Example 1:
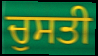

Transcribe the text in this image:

ਚੁਸਤੀ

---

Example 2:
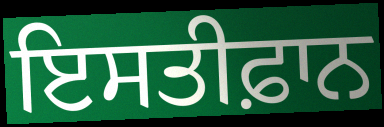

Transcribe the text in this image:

ਇਸਤੀਫ਼ਾਨ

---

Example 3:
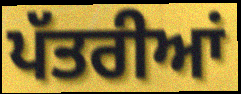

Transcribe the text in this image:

ਪੱਤਰੀਆਂ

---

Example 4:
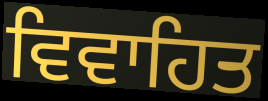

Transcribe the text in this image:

ਵਿਵਾਹਿਤ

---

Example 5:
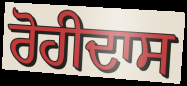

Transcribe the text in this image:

ਰੋਹੀਦਾਸ